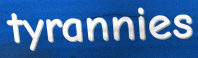
tyrannies